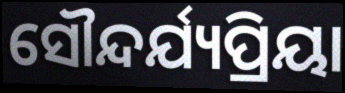
ସୌନ୍ଦର୍ଯ୍ୟପ୍ରିୟା